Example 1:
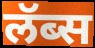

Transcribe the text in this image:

लॅब्स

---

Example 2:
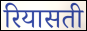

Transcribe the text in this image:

रियासती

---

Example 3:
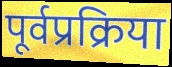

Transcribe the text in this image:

पूर्वप्रक्रिया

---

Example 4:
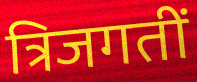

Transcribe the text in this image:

त्रिजगतीं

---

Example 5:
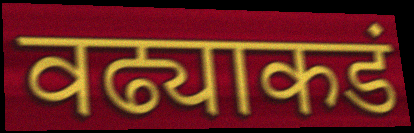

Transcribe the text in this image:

वढ्याकडं